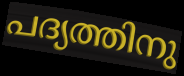
പദ്യത്തിനു